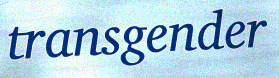
transgender